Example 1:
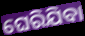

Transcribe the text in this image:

ଘେରିଯିବା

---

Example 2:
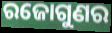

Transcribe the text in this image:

ରଜୋଗୁଣର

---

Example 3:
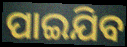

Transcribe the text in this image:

ପାଇଯିବ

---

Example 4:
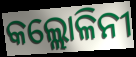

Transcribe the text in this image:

କଲ୍ଲୋଳିନୀ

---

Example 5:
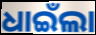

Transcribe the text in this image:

ଧାଇଁଲା